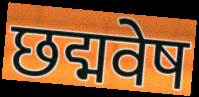
छद्मवेष